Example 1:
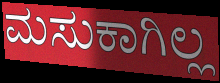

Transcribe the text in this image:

ಮಸುಕಾಗಿಲ್ಲ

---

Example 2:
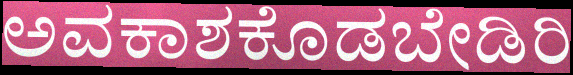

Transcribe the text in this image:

ಅವಕಾಶಕೊಡಬೇಡಿರಿ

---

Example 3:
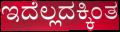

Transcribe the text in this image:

ಇದೆಲ್ಲದಕ್ಕಿಂತ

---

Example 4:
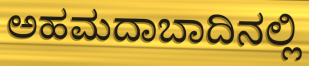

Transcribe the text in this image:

ಅಹಮದಾಬಾದಿನಲ್ಲಿ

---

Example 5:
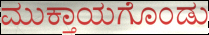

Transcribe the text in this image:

ಮುಕ್ತಾಯಗೊಂಡು